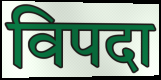
विपदा